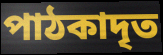
পাঠকাদৃত